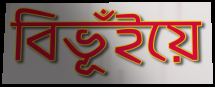
বিভূঁইয়ে